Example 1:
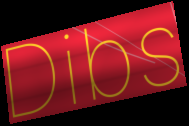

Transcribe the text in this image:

Dibs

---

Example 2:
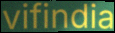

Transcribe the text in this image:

vifindia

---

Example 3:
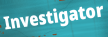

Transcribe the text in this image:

Investigator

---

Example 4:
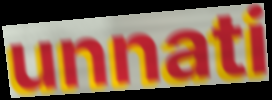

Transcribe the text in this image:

unnati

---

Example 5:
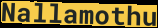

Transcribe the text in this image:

Nallamothu